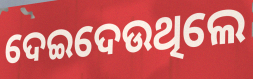
ଦେଇଦେଉଥିଲେ